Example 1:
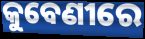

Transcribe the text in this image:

କୁବେଣୀରେ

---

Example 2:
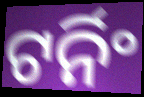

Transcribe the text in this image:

ଟର୍ନିଂ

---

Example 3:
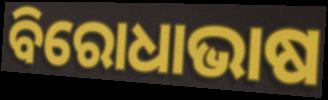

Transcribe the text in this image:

ବିରୋଧାଭାଷ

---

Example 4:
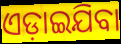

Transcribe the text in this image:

ଏଡ଼ାଇଯିବା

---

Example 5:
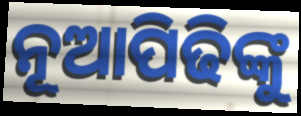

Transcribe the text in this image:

ନୂଆପିଢିଙ୍କୁ